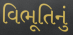
વિભૂતિનું